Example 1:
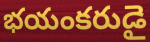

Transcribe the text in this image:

భయంకరుడై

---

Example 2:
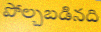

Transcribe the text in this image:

పోల్చబడినది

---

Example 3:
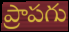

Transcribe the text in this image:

ప్రాపగు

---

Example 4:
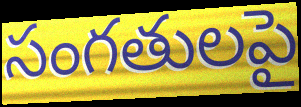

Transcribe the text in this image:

సంగతులపై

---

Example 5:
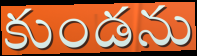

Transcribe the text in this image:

కుండను